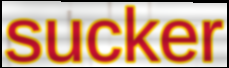
sucker